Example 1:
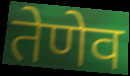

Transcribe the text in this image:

तेणेव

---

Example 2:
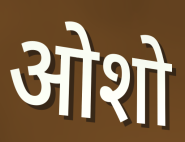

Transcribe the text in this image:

ओशो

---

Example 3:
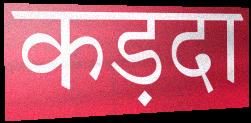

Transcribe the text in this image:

कड़दा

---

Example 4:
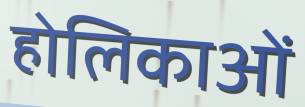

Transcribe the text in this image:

होलिकाओं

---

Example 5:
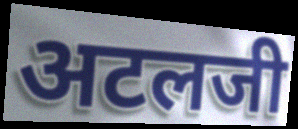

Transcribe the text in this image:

अटलजी